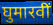
घुमारवीं